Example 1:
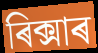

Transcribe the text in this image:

ৰিক্সাৰ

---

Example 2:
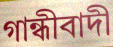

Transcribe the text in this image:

গান্ধীবাদী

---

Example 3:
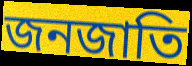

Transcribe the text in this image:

জনজাতি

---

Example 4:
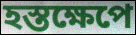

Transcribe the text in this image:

হস্তক্ষেপে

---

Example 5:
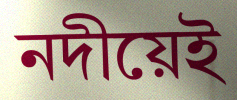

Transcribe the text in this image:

নদীয়েই